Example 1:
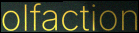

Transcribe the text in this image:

olfaction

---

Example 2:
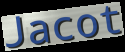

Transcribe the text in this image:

Jacot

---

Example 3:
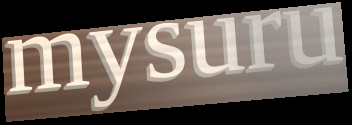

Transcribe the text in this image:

mysuru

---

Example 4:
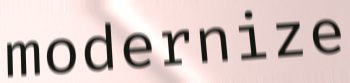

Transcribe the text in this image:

modernize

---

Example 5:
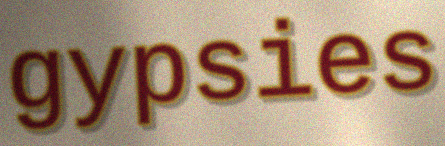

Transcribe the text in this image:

gypsies